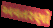
અવતરણો